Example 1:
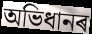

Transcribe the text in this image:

অভিধানৰ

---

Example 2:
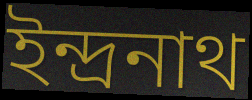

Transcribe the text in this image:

ইন্দ্ৰনাথ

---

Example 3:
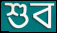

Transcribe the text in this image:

শুব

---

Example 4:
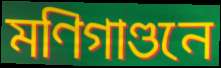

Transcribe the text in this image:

মণিগাণ্ডনে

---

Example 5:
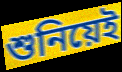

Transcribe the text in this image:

শুনিয়েই